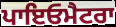
ਪਾਇਓਮੈਟਰਾ